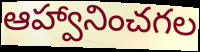
ఆహ్వానించగల